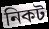
নিকট